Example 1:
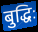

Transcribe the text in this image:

बुद्धिः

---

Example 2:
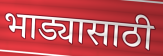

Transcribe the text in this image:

भाड्यासाठी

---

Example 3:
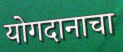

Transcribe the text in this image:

योगदानाचा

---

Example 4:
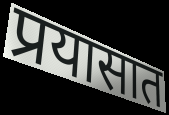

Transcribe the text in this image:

प्रयासात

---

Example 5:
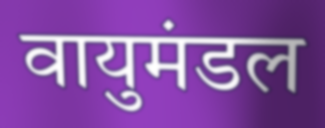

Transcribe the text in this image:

वायुमंडल